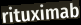
rituximab